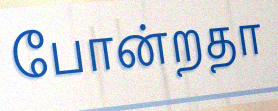
போன்றதா